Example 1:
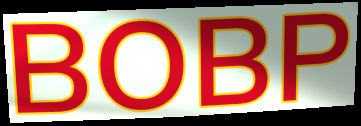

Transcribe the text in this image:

BOBP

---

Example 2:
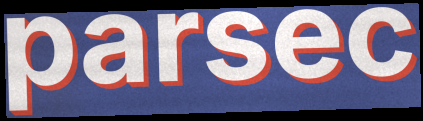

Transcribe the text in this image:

parsec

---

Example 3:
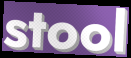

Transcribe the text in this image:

stool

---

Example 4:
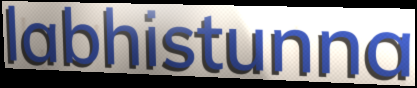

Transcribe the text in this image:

labhistunna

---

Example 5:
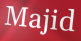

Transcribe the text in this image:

Majid